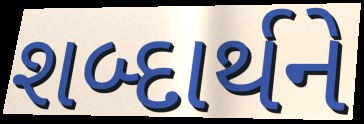
શબ્દાર્થને